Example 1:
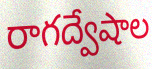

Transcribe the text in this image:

రాగద్వేషాల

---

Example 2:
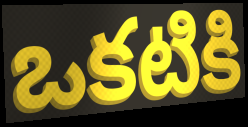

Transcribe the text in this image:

ఒకటికి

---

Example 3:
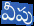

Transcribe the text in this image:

వీపు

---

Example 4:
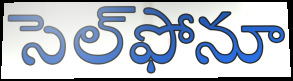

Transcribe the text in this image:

సెల్‌ఫోనూ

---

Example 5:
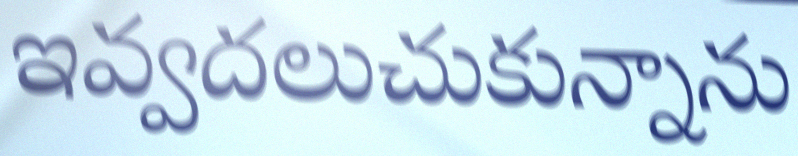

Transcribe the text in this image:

ఇవ్వదలుచుకున్నాను